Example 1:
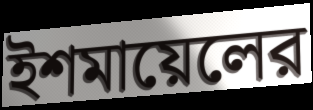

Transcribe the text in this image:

ইশমায়েলের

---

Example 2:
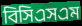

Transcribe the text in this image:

বিসিএসএম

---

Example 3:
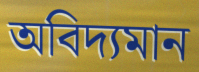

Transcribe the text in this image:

অবিদ্যমান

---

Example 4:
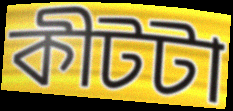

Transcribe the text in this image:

কীটটা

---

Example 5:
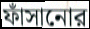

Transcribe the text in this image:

ফাঁসানোর